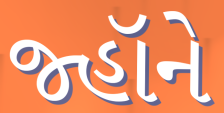
જ્હૉને